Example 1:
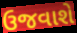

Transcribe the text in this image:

ઉજવાશે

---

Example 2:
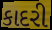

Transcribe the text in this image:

કાદરી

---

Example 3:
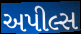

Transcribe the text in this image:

અપીલ્સ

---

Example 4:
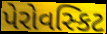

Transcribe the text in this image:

પેરોવસ્કિટ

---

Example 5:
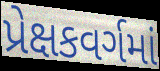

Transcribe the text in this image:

પ્રેક્ષકવર્ગમાં